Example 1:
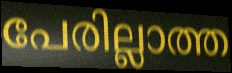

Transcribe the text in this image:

പേരില്ലാത്ത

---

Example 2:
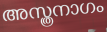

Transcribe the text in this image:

അസ്ത്രനാഗം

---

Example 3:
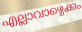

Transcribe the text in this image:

എല്ലാവാഴ്ചെക്കും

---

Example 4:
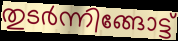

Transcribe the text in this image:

തുടർന്നിങ്ങോട്ട്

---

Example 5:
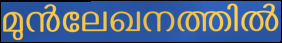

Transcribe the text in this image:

മുൻലേഖനത്തിൽ